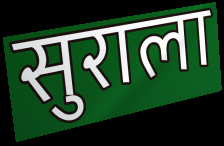
सुराला